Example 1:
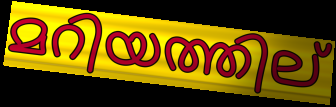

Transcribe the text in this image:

മറിയത്തില്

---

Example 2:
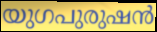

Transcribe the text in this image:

യുഗപുരുഷൻ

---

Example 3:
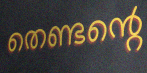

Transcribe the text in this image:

തെണ്ടന്റെ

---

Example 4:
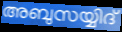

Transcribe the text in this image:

അബുസയ്യിദ്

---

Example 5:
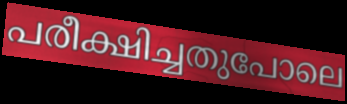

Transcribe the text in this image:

പരീക്ഷിച്ചതുപോലെ